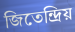
জিতেন্দ্রিয়